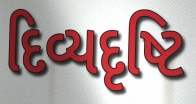
દિવ્યદૃષ્ટિ